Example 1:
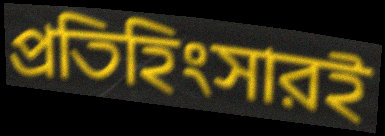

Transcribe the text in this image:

প্রতিহিংসারই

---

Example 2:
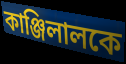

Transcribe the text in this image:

কাঞ্জিলালকে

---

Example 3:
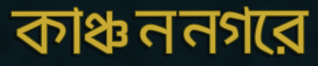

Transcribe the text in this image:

কাঞ্চননগরে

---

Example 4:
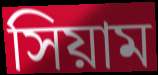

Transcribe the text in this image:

সিয়াম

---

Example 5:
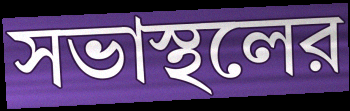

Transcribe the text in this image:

সভাস্থলের